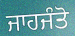
ਜਾਹਜੰਤੋ